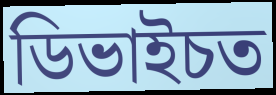
ডিভাইচত